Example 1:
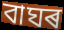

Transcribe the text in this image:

বাঘৰ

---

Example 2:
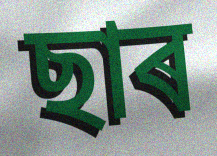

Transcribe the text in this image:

ছাৰ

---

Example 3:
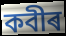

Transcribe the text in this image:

কবীৰ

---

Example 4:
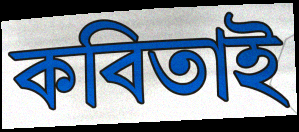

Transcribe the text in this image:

কবিতাই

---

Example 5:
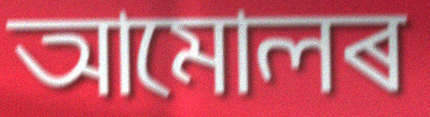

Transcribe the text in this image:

আমোলৰ